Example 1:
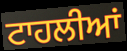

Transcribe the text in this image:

ਟਾਹਲੀਆਂ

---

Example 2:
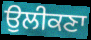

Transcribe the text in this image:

ਉਲੀਕਣਾ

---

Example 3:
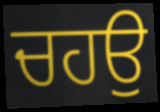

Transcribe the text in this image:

ਚਹਉ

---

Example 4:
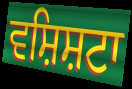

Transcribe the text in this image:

ਵਸ਼ਿਸ਼ਟਾ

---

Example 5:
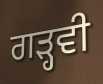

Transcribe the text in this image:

ਗੜ੍ਹਵੀ